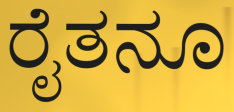
ರೈತನೂ